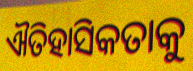
ଐତିହାସିକତାକୁ